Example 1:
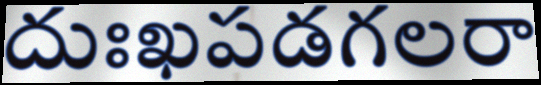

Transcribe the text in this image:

దుఃఖపడగలరా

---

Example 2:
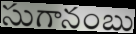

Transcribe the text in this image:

సుగానంబు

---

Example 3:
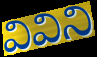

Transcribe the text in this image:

వివిని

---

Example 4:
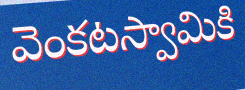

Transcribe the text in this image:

వెంకటస్వామికి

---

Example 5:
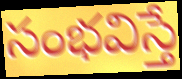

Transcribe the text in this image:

సంభవిస్తే